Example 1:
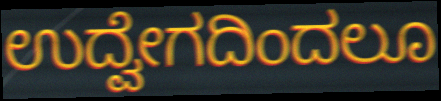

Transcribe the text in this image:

ಉದ್ವೇಗದಿಂದಲೂ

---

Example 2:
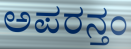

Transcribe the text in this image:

ಅಪರನ್ತಂ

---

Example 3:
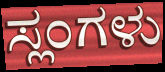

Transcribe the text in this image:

ಸ್ಲಂಗಳು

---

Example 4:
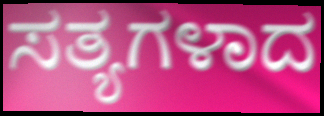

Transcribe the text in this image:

ಸತ್ಯಗಳಾದ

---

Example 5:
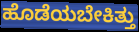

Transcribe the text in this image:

ಹೊಡೆಯಬೇಕಿತ್ತು